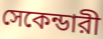
সেকেন্ডারী